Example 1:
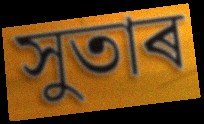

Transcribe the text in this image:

সুতাৰ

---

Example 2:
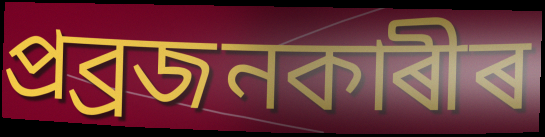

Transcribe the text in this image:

প্ৰব্ৰজনকাৰীৰ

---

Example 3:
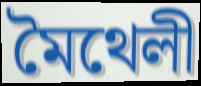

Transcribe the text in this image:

মৈথেলী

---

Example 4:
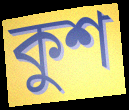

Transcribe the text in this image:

কুশ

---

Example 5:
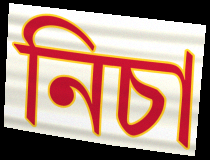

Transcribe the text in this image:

নিচা